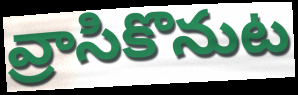
వ్రాసికొనుట